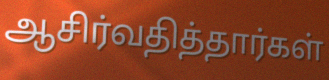
ஆசிர்வதித்தார்கள்